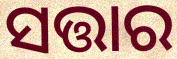
ସତ୍ତାର